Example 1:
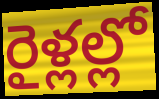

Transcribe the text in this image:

రైళ్లల్లో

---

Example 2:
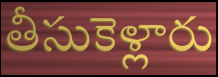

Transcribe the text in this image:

తీసుకెళ్లారు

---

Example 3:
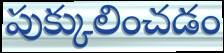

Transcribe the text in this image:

పుక్కులించడం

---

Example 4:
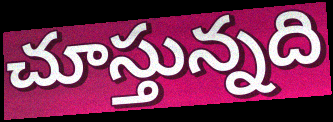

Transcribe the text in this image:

చూస్తున్నది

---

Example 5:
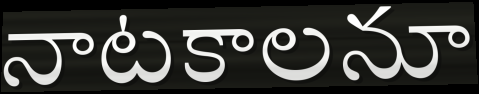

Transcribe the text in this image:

నాటకాలనూ